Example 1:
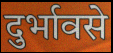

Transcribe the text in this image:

दुर्भावसे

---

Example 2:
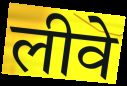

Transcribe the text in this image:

लीवे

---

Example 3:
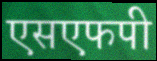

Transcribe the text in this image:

एसएफपी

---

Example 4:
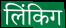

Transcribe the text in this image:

लिंकिग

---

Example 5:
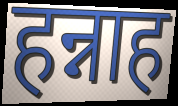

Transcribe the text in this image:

हन्नाह